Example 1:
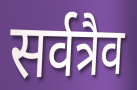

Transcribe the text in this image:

सर्वत्रैव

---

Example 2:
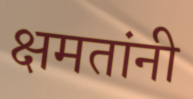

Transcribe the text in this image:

क्षमतांनी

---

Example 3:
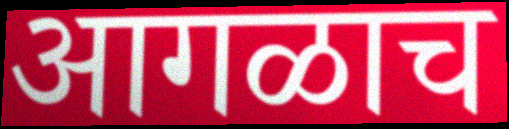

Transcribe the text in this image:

आगळाच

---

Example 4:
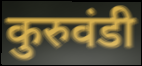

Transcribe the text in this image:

कुरुवंडी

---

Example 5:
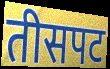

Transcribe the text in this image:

तीसपट